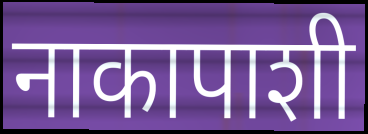
नाकापाशी